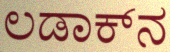
ಲಡಾಕ್‌ನ